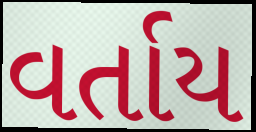
વર્તાય